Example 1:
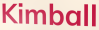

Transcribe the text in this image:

Kimball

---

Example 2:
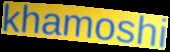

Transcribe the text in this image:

khamoshi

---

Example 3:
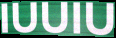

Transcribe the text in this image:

IUUIU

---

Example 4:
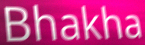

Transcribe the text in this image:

Bhakha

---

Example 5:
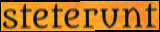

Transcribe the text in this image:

steterunt